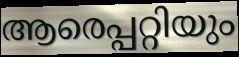
ആരെപ്പറ്റിയും